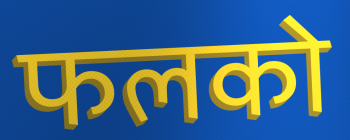
फलको